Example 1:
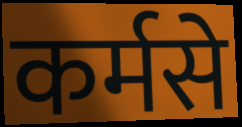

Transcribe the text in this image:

कर्मसे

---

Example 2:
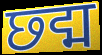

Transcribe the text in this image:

छ्द्म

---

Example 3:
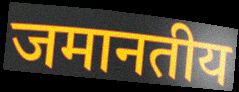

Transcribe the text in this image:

जमानतीय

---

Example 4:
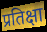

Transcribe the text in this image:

प्रतिक्षा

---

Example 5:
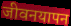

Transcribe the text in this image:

जीवनयापन